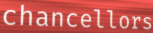
chancellors